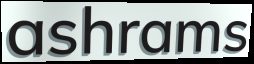
ashrams